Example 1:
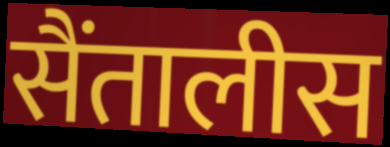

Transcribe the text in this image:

सैंतालीस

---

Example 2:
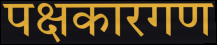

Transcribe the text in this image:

पक्षकारगण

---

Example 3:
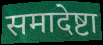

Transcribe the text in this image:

समादेष्टा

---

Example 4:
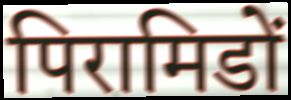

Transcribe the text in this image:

पिरामिडों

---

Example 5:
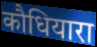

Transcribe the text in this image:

कौधियारा